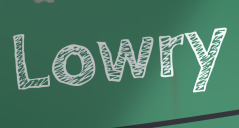
Lowry